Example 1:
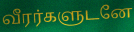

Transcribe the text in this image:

வீரர்களுடனே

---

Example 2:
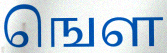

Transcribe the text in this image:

ஙௌ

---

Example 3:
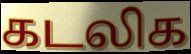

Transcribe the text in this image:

கடலிக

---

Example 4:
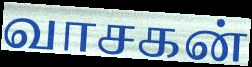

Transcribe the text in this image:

வாசகன்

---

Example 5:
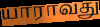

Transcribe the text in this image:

யாராவது